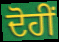
ਦੋਹੀਂ